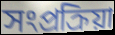
সংপ্ৰক্ৰিয়া